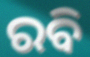
ରବି